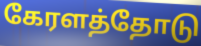
கேரளத்தோடு